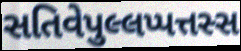
સતિવેપુલ્લપ્પત્તસ્સ